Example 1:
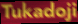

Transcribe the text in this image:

Tukadoji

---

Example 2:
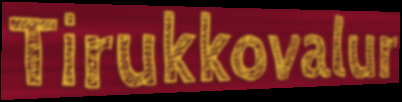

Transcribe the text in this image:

Tirukkovalur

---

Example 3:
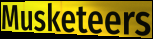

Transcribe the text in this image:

Musketeers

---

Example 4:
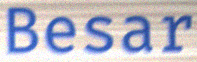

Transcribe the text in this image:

Besar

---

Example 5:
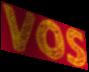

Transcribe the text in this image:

vos